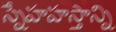
స్నేహహస్తాన్ని